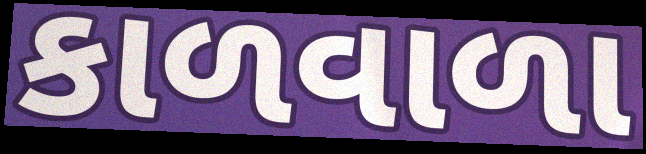
કાળવાળા